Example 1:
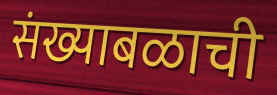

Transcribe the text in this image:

संख्याबळाची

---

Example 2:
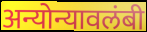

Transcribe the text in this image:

अन्योन्यावलंबी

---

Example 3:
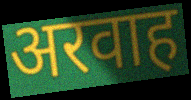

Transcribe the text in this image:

अरवाह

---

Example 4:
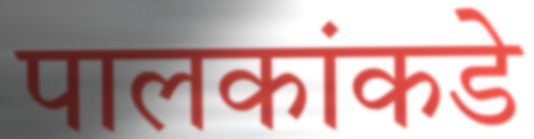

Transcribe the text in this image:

पालकांकडे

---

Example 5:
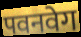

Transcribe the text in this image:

पवनवेग